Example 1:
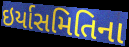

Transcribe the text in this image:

ઇર્યાસમિતિના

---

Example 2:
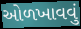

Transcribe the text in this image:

ઓળખાવવું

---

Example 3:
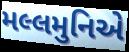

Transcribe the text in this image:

મલ્લમુનિએ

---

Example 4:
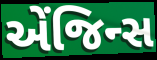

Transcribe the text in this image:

એંજિન્સ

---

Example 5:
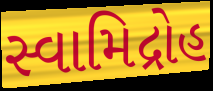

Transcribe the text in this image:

સ્વામિદ્રોહ